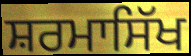
ਸ਼ਰਮਾਸਿੱਖ